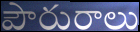
పౌరురాలు